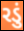
રડું